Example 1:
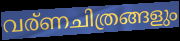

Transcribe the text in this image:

വര്ണചിത്രങ്ങളും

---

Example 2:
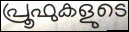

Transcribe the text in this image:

പ്രൂഫുകളുടെ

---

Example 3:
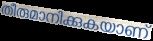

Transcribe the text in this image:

തീരുമാനിക്കുകയാണ്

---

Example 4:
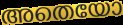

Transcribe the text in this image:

അതെയോ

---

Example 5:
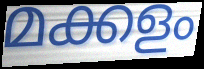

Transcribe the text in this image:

മക്കളം